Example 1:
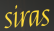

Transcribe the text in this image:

siras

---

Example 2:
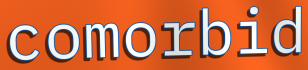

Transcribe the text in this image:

comorbid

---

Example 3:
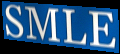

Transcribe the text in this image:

SMLE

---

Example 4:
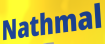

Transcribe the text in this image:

Nathmal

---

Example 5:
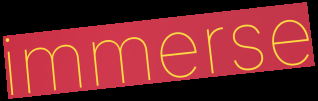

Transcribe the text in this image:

immerse